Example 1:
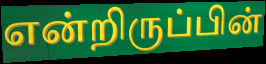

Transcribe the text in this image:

என்றிருப்பின்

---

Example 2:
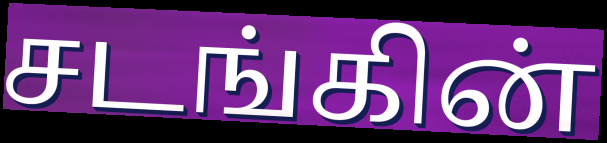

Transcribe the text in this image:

சடங்கின்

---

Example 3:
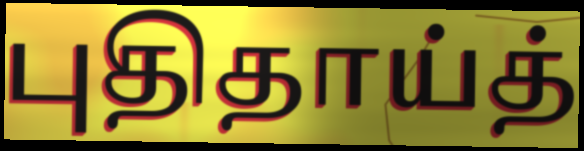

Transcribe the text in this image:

புதிதாய்த்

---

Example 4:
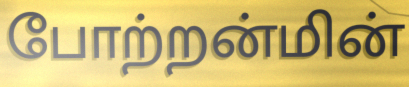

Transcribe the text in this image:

போற்றன்மின்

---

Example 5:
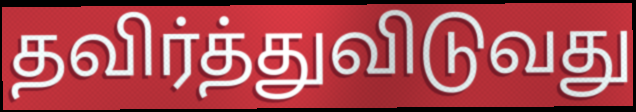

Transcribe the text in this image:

தவிர்த்துவிடுவது